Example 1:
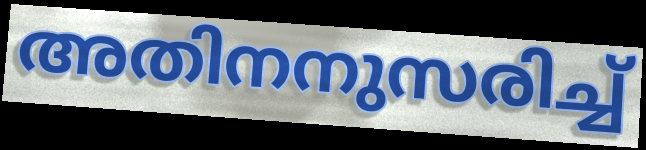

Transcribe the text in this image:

അതിനനുസരിച്ച്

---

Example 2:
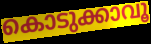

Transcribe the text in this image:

കൊടുക്കാവൂ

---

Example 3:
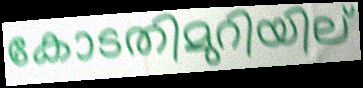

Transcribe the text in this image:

കോടതിമുറിയില്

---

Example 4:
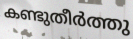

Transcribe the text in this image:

കണ്ടുതീർത്തു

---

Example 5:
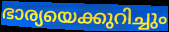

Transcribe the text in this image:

ഭാര്യയെക്കുറിച്ചും